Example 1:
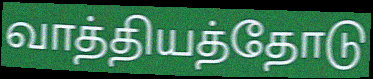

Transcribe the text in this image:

வாத்தியத்தோடு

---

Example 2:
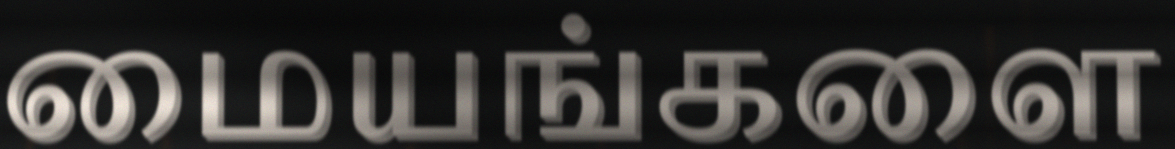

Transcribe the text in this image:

மையங்களை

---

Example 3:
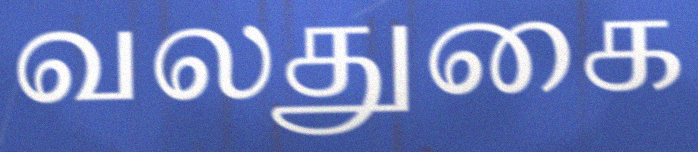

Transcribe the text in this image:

வலதுகை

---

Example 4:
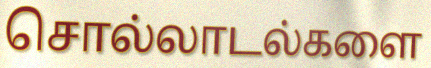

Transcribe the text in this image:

சொல்லாடல்களை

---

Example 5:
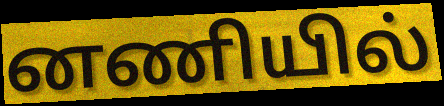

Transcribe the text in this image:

னணியில்